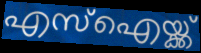
എസ്ഐയ്ക്ക്